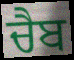
ਚੈਬ